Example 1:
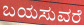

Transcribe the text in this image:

ಬಯಸುವರೆ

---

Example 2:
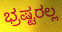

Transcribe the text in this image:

ಭ್ರಷ್ಟರಲ್ಲ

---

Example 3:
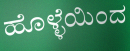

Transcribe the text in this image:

ಹೊಳ್ಳೆಯಿಂದ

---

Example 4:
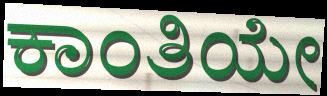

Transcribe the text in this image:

ಕಾಂತಿಯೇ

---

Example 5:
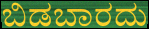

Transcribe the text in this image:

ಬಿಡಬಾರದು